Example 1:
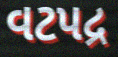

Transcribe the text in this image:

વટપદ્ર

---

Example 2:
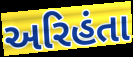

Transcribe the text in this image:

અરિહંતા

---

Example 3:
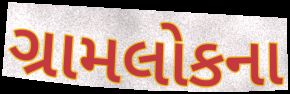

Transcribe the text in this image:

ગ્રામલોકના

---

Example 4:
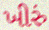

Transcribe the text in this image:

ખીરું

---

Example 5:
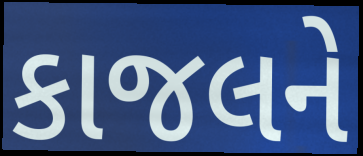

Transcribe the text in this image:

કાજલને